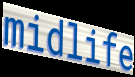
midlife